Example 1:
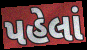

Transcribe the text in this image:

પહેલાં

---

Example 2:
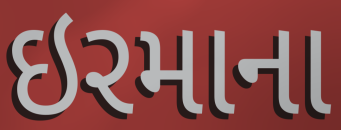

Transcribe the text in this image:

ઇરમાના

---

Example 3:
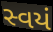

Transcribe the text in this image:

સ્વયં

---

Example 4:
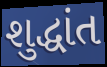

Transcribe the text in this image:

શુદ્ધાંત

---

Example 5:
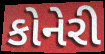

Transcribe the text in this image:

કોનેરી